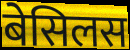
बेसिलस